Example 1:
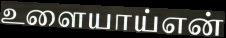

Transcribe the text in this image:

உளையாய்என்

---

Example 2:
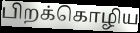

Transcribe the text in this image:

பிறக்கொழிய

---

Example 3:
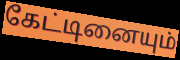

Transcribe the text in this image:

கேட்டினையும்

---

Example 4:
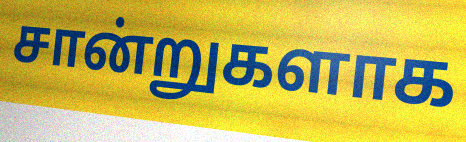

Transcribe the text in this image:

சான்றுகளாக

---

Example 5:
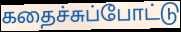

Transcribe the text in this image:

கதைச்சுப்போட்டு